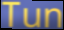
Tun